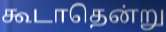
கூடாதென்று